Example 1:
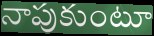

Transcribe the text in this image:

నాపుకుంటూ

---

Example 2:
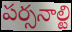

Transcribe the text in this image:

పర్సనాల్టి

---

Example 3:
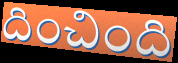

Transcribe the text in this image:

దించింది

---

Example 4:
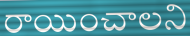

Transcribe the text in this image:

రాయించాలని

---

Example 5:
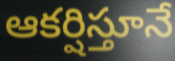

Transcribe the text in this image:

ఆకర్షిస్తూనే